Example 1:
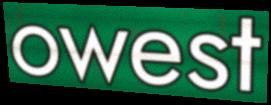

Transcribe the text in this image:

owest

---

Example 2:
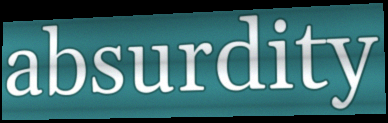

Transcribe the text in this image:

absurdity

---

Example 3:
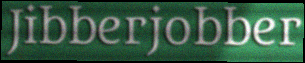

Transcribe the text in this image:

Jibberjobber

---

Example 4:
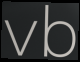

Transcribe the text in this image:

vb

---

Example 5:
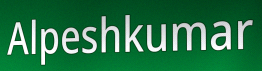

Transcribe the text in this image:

Alpeshkumar